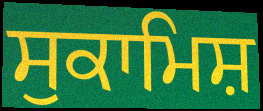
ਸੁਕਾਮਿਸ਼